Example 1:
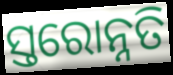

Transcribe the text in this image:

ସ୍ତରୋନ୍ନତି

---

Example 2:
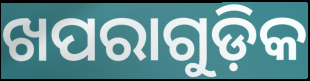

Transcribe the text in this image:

ଖପରାଗୁଡ଼ିକ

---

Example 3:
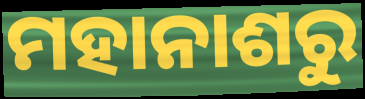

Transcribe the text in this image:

ମହାନାଶରୁ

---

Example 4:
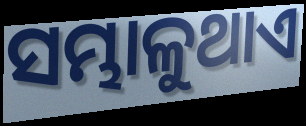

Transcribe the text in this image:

ସମ୍ଭାଳୁଥାଏ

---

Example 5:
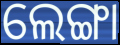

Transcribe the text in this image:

ଲେଙ୍ଗା